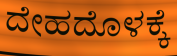
ದೇಹದೊಳಕ್ಕೆ